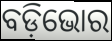
ବଡ଼ିଭୋର